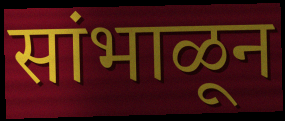
सांभाळून